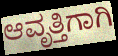
ಆವೃತ್ತಿಗಾಗಿ